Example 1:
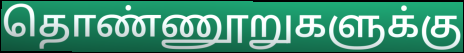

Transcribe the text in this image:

தொண்ணூறுகளுக்கு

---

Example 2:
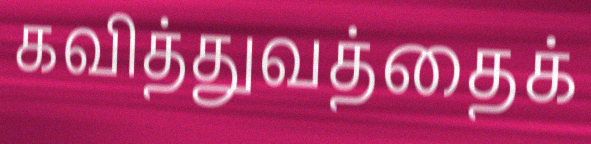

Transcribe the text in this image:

கவித்துவத்தைக்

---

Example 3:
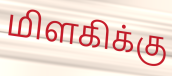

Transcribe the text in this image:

மிளகிக்கு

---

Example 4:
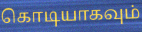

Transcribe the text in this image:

கொடியாகவும்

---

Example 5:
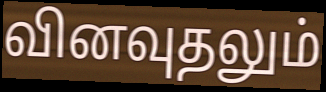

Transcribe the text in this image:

வினவுதலும்